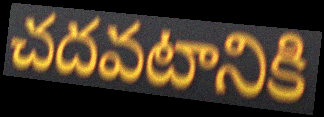
చదవటానికి